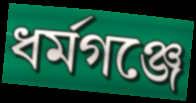
ধর্মগঞ্জে